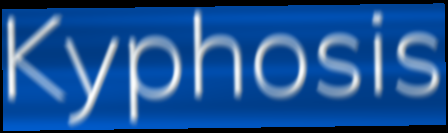
Kyphosis